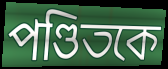
পণ্ডিতকে